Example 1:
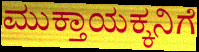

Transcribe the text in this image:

ಮುಕ್ತಾಯಕ್ಕನಿಗೆ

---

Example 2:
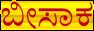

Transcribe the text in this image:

ಬೀಸಾಕ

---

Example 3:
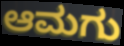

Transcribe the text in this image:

ಆಮಗು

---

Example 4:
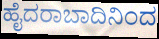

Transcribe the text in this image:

ಹೈದರಾಬಾದಿನಿಂದ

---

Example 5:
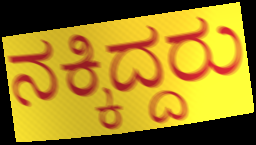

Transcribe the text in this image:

ನಕ್ಕಿದ್ದರು